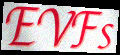
EVFs